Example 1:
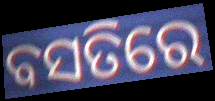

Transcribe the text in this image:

ବସତିରେ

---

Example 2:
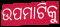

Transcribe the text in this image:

ଉପମାଟିକୁ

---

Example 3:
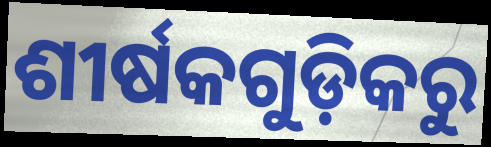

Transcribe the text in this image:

ଶୀର୍ଷକଗୁଡ଼ିକରୁ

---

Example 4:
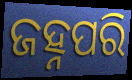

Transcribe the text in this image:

ଜହ୍ନପରି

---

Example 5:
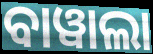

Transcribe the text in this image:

ବାୱାଲା